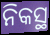
ନିକସ୍ଥ